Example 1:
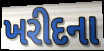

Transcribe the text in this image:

ખરીદના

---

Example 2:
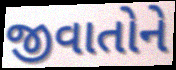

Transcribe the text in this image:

જીવાતોને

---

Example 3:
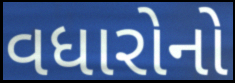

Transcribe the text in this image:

વધારોનો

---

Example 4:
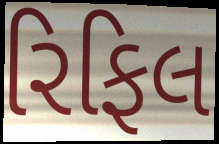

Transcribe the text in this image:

રિફિલ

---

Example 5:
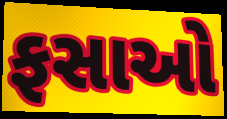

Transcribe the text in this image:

ફસાઓ